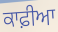
ਕਾਫ਼ੀਆ